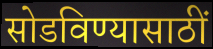
सोडविण्यासाठीं